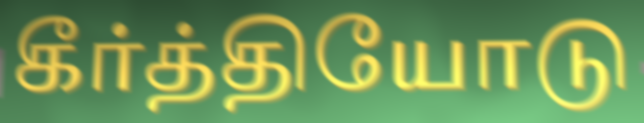
கீர்த்தியோடு